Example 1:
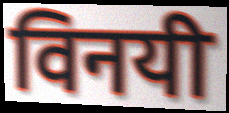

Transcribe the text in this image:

विनयी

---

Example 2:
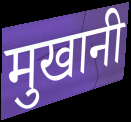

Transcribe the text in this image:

मुखानी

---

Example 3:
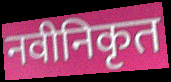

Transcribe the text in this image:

नवीनिकृत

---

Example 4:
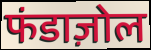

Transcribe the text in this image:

फंडाज़ोल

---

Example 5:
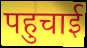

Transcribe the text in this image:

पहुचाई